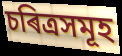
চৰিত্ৰসমূহ